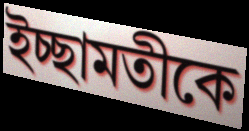
ইচ্ছামতীকে